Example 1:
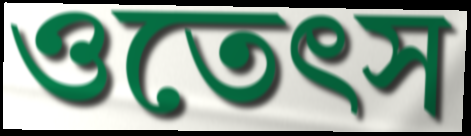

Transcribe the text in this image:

ওতেৎস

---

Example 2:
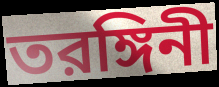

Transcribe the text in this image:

তরঙ্গিনী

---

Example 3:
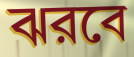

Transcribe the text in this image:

ঝরবে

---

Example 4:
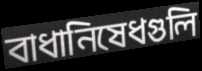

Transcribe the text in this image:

বাধানিষেধগুলি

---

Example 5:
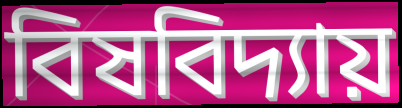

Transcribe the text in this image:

বিষবিদ্যায়